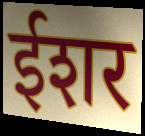
ईशर